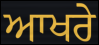
ਆਖਰੇ